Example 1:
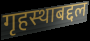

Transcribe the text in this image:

गृहस्थाबद्दल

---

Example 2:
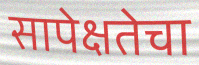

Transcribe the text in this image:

सापेक्षतेचा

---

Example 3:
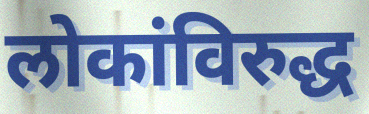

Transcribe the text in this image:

लोकांविरुद्ध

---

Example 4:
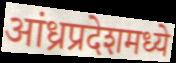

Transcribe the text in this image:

आंध्रप्रदेशमध्ये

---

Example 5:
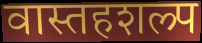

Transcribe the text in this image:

वास्तहशल्प